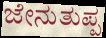
ಜೇನುತುಪ್ಪ